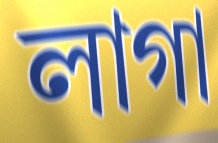
লাগা